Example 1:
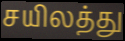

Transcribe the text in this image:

சயிலத்து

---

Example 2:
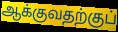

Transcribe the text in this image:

ஆக்குவதற்குப்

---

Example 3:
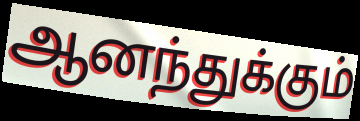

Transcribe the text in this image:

ஆனந்துக்கும்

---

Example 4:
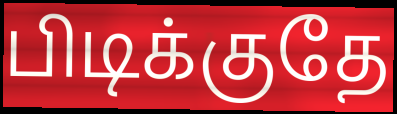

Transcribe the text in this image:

பிடிக்குதே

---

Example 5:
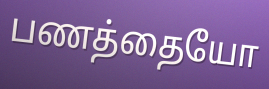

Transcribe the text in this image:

பணத்தையோ